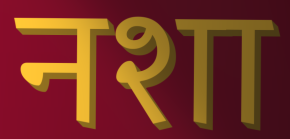
नशा